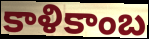
కాళికాంబ